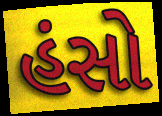
હંસો